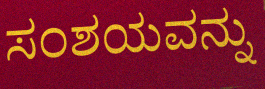
ಸಂಶಯವನ್ನು